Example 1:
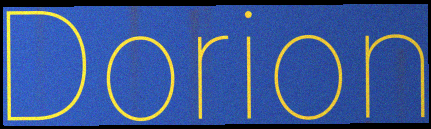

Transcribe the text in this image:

Dorion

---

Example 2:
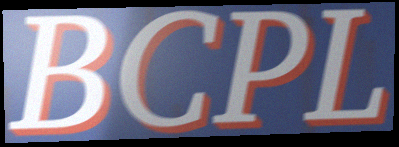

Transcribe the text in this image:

BCPL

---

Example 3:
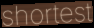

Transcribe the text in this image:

shortest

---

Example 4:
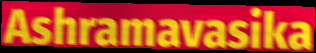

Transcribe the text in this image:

Ashramavasika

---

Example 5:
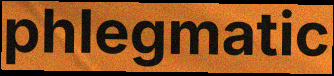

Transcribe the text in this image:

phlegmatic